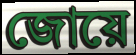
জোয়ে